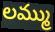
లమ్ము